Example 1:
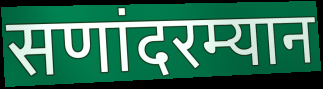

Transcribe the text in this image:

सणांदरम्यान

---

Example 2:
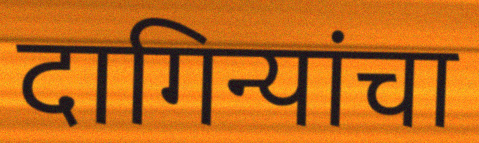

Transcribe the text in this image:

दागिन्यांचा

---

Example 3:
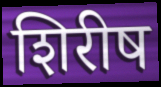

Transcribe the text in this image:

शिरीष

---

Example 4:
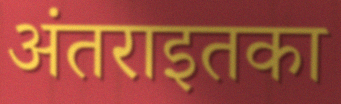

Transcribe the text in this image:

अंतराइतका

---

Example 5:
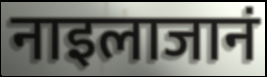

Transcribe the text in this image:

नाइलाजानं